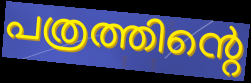
പത്രത്തിന്റെ